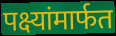
पक्ष्यांमार्फत